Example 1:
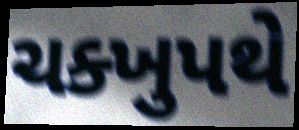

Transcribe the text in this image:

ચક્ખુપથે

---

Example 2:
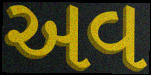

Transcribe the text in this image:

અવ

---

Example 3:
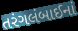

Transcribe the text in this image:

તરંગલંબાઈનાં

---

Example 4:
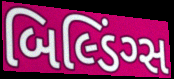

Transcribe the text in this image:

બિલ્ડિંગ્સ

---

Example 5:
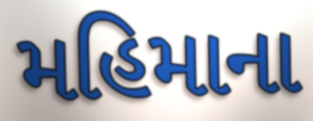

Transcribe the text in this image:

મહિમાના